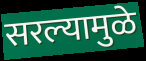
सरल्यामुळे